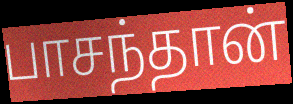
பாசந்தான்